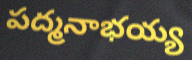
పద్మనాభయ్య